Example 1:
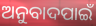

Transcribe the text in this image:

ଅନୁବାଦପାଇଁ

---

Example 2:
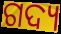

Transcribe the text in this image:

ଗଦ୍ୟ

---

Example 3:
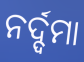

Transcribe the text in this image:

ନର୍ଦ୍ଦମା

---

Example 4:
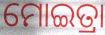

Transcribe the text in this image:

ମୋଇତ୍ରା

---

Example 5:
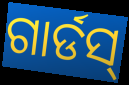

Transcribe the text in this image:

ଗାର୍ଡସ୍